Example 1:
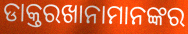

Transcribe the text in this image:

ଡାକ୍ତରଖାନାମାନଙ୍କର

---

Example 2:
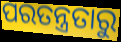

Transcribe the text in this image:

ପରତନ୍ତ୍ରତାରୁ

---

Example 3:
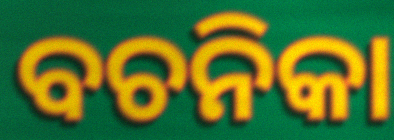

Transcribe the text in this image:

ବଚନିକା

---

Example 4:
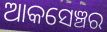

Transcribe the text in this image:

ଆକସେଞ୍ଚର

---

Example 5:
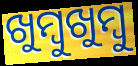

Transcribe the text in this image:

ଖୁମ୍ୱୁଖୁମ୍ବୁ